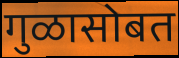
गुळासोबत